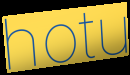
hotu